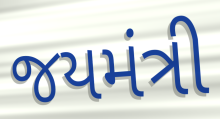
જયમંત્રી